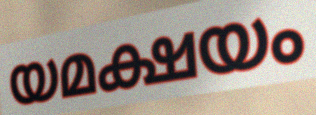
യമക്ഷയം